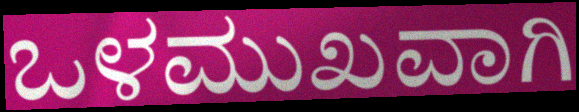
ಒಳಮುಖವಾಗಿ